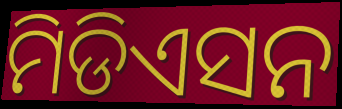
ମିଡିଏସନ